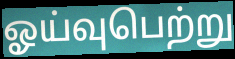
ஓய்வுபெற்று